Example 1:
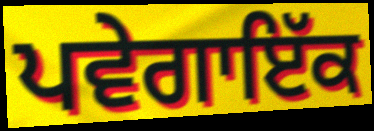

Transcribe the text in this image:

ਪਵੇਗਾਇੱਕ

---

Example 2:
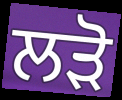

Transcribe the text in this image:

ਲੜੋ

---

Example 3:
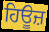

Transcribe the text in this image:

ਹਿਊਜ਼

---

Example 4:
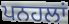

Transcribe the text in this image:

ਪਨਹਲਾਂ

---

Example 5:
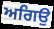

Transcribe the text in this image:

ਅਗਿਉ